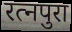
रत्नपुरा